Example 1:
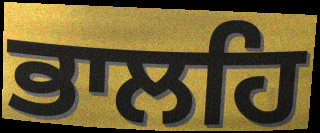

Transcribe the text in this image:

ਭਾਲਹਿ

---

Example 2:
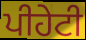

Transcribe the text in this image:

ਪੀਹੇਟੀ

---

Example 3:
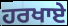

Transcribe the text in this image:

ਹਰਖਾਏ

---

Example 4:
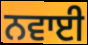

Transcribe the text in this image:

ਨਵਾਈ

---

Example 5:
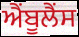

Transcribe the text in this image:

ਐੰਬੂਲੈਂਸ